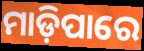
ମାଡ଼ିପାରେ